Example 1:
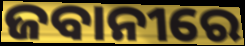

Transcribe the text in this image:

ଜବାନୀରେ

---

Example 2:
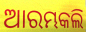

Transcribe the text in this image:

ଆରମ୍ଭକଲି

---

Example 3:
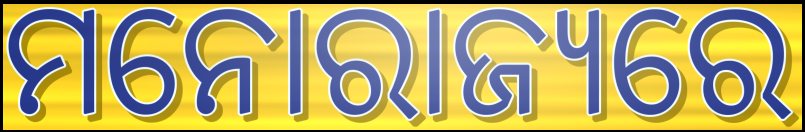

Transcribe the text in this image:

ମନୋରାଜ୍ୟରେ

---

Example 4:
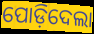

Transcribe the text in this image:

ପୋଡ଼ିଦେଲା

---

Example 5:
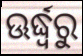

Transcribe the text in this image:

ଊର୍ଦ୍ଧ୍ଵରୁ